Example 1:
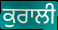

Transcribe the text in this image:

ਕੁਰਾਲੀ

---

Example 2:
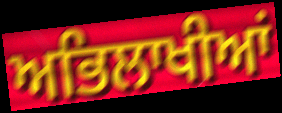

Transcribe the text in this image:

ਅਭਿਲਾਖੀਆਂ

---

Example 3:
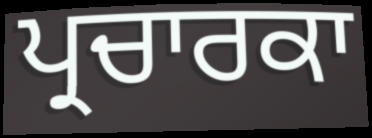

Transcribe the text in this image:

ਪ੍ਰਚਾਰਕਾ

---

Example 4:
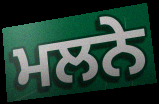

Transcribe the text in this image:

ਮਲਨੇ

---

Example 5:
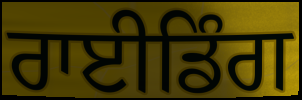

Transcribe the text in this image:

ਰਾਈਡਿੰਗ